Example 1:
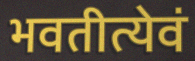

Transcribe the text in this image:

भवतीत्येवं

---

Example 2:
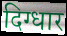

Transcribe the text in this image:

दिग्धार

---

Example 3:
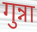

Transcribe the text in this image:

गुन्ना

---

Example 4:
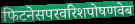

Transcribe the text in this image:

फिटनेसपरवरिशपोषणवेब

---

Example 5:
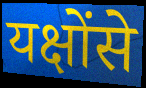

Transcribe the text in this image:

यक्षोंसे